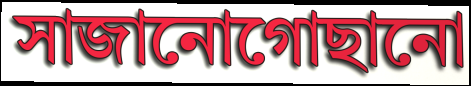
সাজানোগোছানো